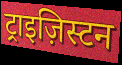
ट्राइज़िस्टन